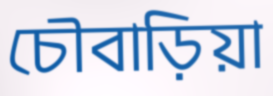
চৌবাড়িয়া